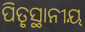
ପିତୃସ୍ଥାନୀୟ